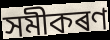
সমীকৰণ